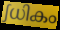
ഽധികം